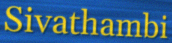
Sivathambi